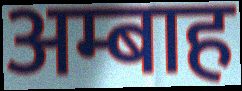
अम्बाह